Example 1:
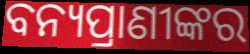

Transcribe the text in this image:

ବନ୍ୟପ୍ରାଣୀଙ୍କର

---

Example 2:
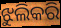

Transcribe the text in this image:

ଝୁଲିକରି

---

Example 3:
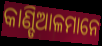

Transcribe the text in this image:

କାଣ୍ଡିଆଳମାନେ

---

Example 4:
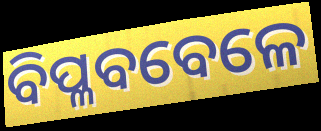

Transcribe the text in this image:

ବିପ୍ଳବବେଳେ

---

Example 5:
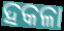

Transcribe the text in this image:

ହକଳା